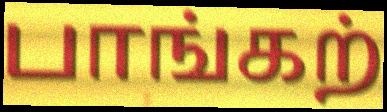
பாங்கற்